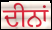
ਦੀਨਾਂ